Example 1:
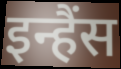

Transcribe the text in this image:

इन्हैंस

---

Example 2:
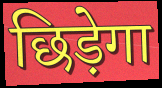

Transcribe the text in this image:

छिड़ेगा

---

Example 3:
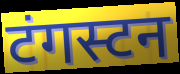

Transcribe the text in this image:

टंगस्टन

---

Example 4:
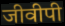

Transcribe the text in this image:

जीवीपी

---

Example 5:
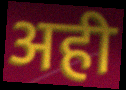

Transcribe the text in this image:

अही